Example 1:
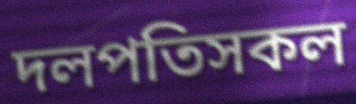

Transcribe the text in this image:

দলপতিসকল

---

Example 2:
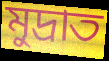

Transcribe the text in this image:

মুদ্ৰাত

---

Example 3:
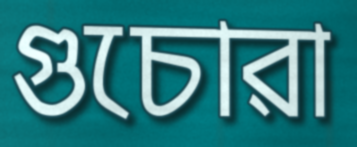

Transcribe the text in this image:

গুচোৱা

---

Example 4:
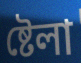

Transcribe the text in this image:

ষ্টেলা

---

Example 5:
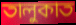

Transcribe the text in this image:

তালুকাত